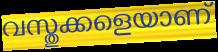
വസ്തുക്കളെയാണ്